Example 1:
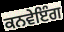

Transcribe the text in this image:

ਕਨਵੇਇੰਗ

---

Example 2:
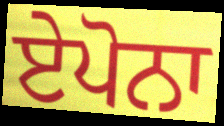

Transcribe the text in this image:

ਏਪੋਨਾ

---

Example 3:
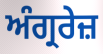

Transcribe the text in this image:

ਅੰਗ੍ਰਰੇਜ਼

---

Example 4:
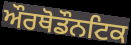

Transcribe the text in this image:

ਔਰਥੋਡੌਨਟਿਕ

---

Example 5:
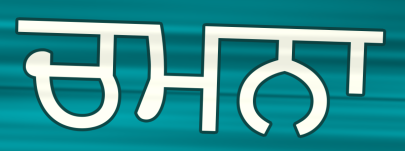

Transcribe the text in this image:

ਚਮਨਾ